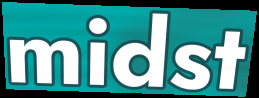
midst